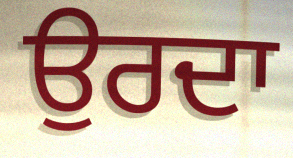
ਉਰਦਾ